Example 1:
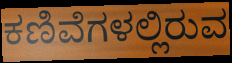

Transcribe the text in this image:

ಕಣಿವೆಗಳಲ್ಲಿರುವ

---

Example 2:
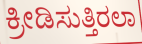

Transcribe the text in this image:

ಕ್ರೀಡಿಸುತ್ತಿರಲಾ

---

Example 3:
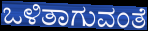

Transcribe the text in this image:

ಒಳಿತಾಗುವಂತೆ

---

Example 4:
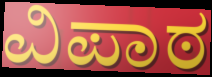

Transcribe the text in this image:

ವಿಪಾಠ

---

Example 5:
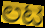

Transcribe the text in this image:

ಲಟ